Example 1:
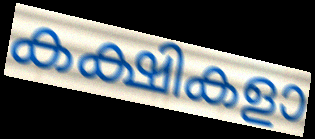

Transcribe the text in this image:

കക്ഷികളാ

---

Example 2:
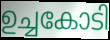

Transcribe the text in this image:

ഉച്ചകോടി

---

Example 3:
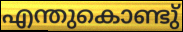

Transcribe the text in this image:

എന്തുകൊണ്ടു്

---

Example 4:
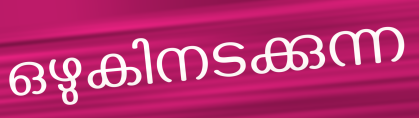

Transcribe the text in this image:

ഒഴുകിനടക്കുന്ന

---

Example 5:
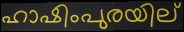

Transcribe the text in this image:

ഹാഷിംപുരയില്